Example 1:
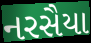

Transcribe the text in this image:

નરસૈયા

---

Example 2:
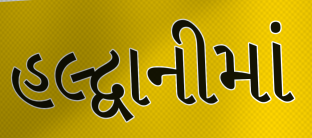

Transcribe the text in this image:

હલ્દ્વાનીમાં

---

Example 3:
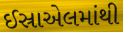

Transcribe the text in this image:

ઈસ્રાએલમાંથી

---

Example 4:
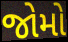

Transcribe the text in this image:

જોમો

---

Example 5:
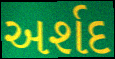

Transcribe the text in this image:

અર્શદ